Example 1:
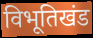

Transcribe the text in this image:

विभूतिखंड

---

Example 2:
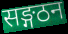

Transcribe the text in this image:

सङ्गठन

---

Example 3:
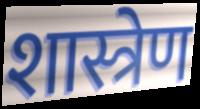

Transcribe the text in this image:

शास्त्रेण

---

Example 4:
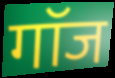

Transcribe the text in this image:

गॉज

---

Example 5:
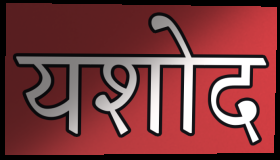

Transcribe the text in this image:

यशोद